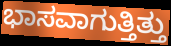
ಭಾಸವಾಗುತ್ತಿತ್ತು